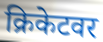
क्रिकेटवर